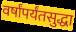
वर्षांपर्यंतसुद्धा